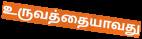
உருவத்தையாவது